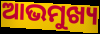
ଆଭମୁଖ୍ୟ